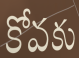
కోవకు